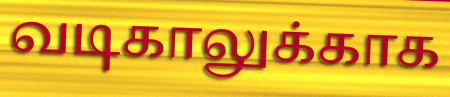
வடிகாலுக்காக